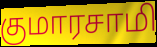
குமாரசாமி